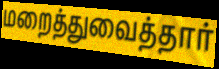
மறைத்துவைத்தார்